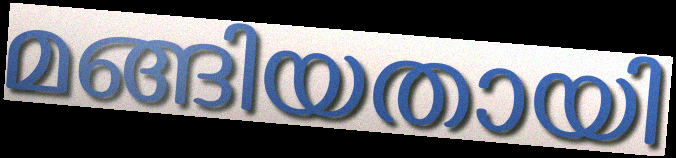
മങ്ങിയതായി